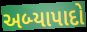
અબ્યાપાદો